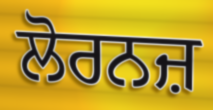
ਲੋਰਨਜ਼